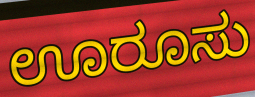
ಊರೂಸು